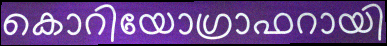
കൊറിയോഗ്രാഫറായി